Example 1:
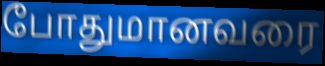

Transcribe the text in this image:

போதுமானவரை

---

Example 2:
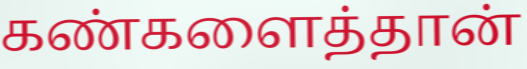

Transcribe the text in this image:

கண்களைத்தான்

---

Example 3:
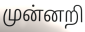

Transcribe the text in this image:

முன்னறி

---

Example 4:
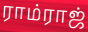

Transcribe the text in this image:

ராம்ராஜ்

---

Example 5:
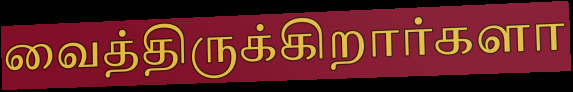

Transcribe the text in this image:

வைத்திருக்கிறார்களா